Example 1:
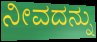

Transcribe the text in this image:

ನೀವದನ್ನು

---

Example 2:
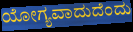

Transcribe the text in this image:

ಯೋಗ್ಯವಾದುದೆಂದು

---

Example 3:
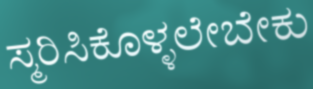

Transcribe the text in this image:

ಸ್ಮರಿಸಿಕೊಳ್ಳಲೇಬೇಕು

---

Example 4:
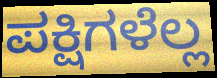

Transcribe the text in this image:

ಪಕ್ಷಿಗಳೆಲ್ಲ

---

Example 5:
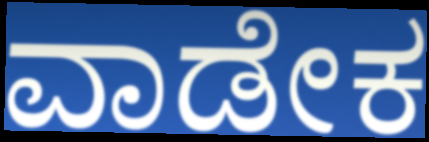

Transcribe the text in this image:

ವಾಡೇಕ